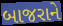
બાજરાને